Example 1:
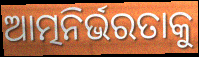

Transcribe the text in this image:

ଆତ୍ମନିର୍ଭରତାକୁ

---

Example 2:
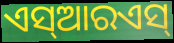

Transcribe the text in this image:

ଏସ୍ଆରଏସ୍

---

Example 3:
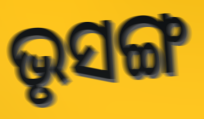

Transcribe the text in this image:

ଭୃସଙ୍ଗ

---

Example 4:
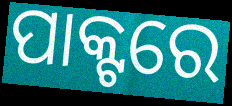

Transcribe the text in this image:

ପାକ୍ଟରେ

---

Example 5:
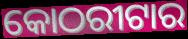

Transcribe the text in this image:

କୋଠରୀଟାର